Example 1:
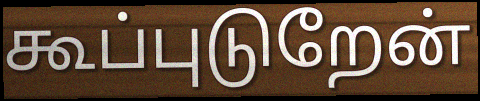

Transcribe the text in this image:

கூப்புடுறேன்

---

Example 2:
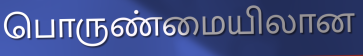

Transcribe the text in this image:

பொருண்மையிலான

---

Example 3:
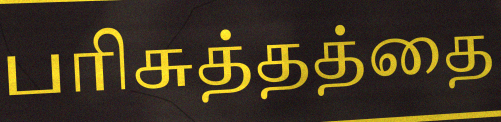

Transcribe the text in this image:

பரிசுத்தத்தை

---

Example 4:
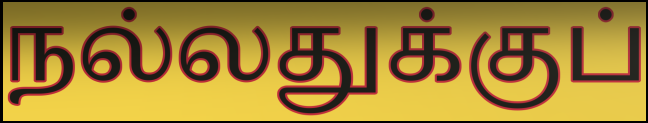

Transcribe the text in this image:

நல்லதுக்குப்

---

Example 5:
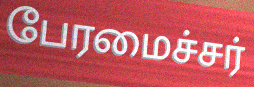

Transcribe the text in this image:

பேரமைச்சர்